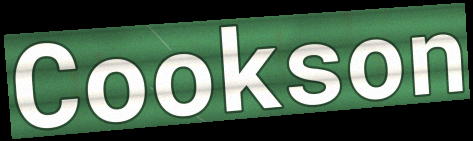
Cookson